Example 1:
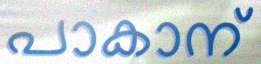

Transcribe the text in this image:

പാകാന്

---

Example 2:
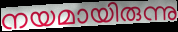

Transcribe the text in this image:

നയമായിരുന്നു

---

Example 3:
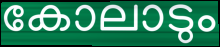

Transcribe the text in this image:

കോലാടും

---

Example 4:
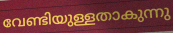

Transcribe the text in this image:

വേണ്ടിയുള്ളതാകുന്നു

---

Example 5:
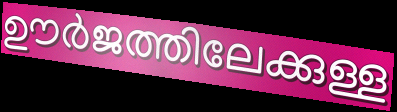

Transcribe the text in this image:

ഊർജത്തിലേക്കുള്ള